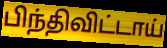
பிந்திவிட்டாய்